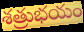
శత్రుభయం